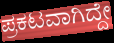
ಪ್ರಕಟವಾಗಿದ್ದೇ